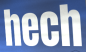
hech